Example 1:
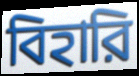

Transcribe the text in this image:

বিহারি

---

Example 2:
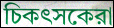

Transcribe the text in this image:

চিকৎসকেরা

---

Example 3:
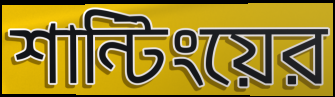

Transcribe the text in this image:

শান্টিংয়ের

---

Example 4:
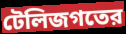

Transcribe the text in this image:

টেলিজগতের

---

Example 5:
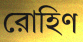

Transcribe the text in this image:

রোহিণ